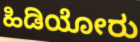
ಹಿಡಿಯೋರು